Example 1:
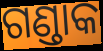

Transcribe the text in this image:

ଗଣ୍ଡାକ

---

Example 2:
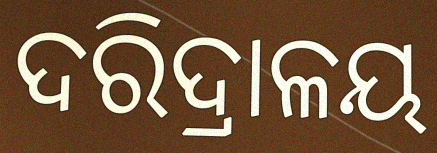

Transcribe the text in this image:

ଦରିଦ୍ରାଳୟ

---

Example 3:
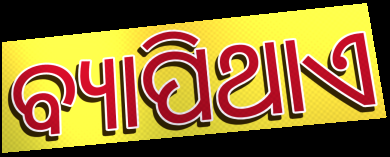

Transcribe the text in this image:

ବ୍ୟାପିଥାଏ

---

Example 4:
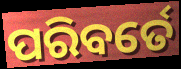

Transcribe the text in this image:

ପରିବର୍ତେ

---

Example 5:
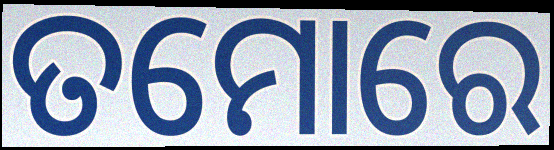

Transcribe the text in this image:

ତମୋରେ